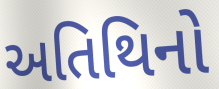
અતિથિનો